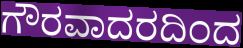
ಗೌರವಾದರದಿಂದ